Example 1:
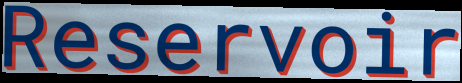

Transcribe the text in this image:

Reservoir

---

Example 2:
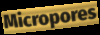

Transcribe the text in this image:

Micropores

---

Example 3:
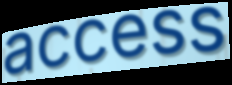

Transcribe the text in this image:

access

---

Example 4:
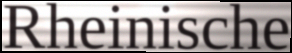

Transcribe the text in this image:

Rheinische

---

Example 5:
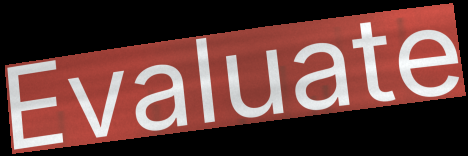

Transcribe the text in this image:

Evaluate